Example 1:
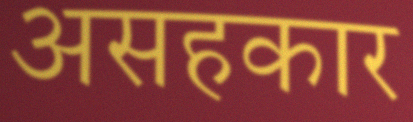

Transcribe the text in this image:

असहकार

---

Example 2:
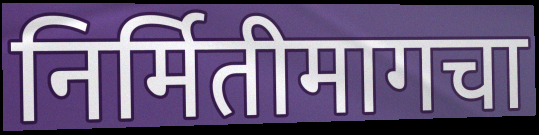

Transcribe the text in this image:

निर्मितीमागचा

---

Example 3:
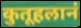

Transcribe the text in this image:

कुतूहलानं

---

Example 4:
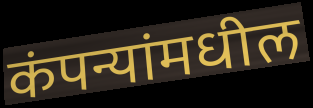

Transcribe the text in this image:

कंपन्यांमधील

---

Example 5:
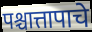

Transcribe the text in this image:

पश्चात्तापाचे